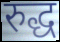
रुद्ध